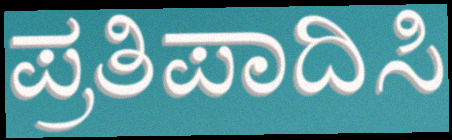
ಪ್ರತಿಪಾದಿಸಿ